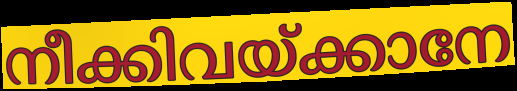
നീക്കിവയ്ക്കാനേ